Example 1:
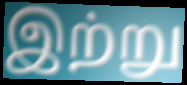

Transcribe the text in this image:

இற்று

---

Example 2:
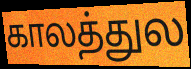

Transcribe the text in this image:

காலத்துல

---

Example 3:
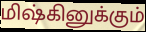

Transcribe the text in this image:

மிஷ்கினுக்கும்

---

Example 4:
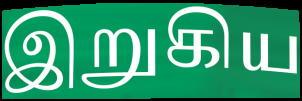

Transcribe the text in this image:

இறுகிய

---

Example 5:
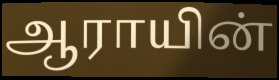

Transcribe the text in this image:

ஆராயின்